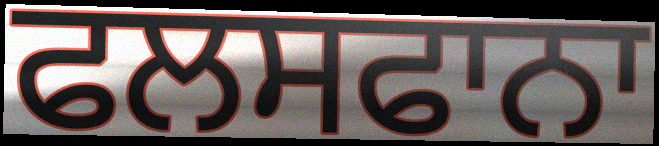
ਫਲਸਫਾਨਾ